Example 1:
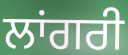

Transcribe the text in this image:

ਲਾਂਗਰੀ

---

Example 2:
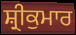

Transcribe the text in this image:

ਸ਼੍ਰੀਕੁਮਾਰ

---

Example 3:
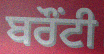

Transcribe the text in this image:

ਬਰੌਂਟੀ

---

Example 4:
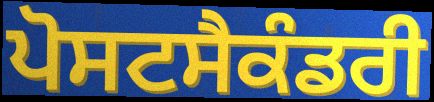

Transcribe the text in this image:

ਪੋਸਟਸੈਕੰਡਰੀ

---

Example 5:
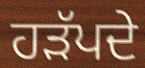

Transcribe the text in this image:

ਹੜੱਪਦੇ